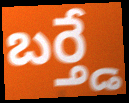
బర్త్డే